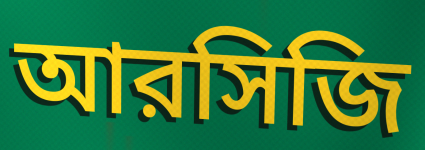
আরসিজি